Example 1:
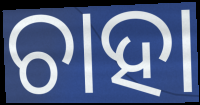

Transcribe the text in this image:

ଚାହା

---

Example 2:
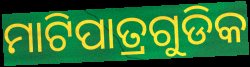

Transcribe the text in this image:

ମାଟିପାତ୍ରଗୁଡିକ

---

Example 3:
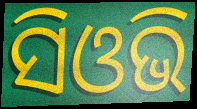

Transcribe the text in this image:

ସିଓଭି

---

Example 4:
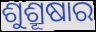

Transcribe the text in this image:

ଶୁଶ୍ରୂଷାର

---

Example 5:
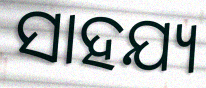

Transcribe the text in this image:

ସାହଯ୍ୟ